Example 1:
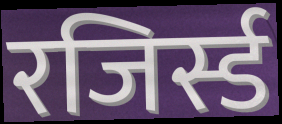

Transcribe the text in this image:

रजिर्स्ड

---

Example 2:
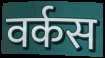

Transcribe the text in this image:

वर्कस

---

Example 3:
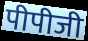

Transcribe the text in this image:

पीपीजी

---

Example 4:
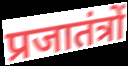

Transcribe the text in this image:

प्रजातंत्रों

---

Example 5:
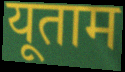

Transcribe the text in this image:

यूताम